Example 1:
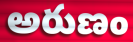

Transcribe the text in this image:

అరుణం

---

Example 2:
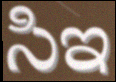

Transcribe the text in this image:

సిఇ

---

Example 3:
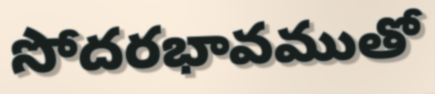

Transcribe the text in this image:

సోదరభావముతో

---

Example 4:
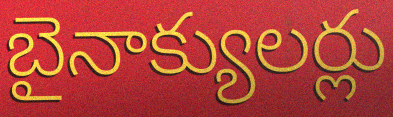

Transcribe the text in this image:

బైనాక్యులర్లు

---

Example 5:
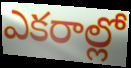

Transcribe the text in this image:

ఎకరాల్లో